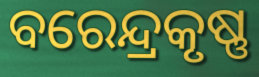
ବରେନ୍ଦ୍ରକୃଷ୍ଣ